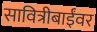
सावित्रीबाईंवर